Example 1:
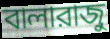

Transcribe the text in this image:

বালারাজু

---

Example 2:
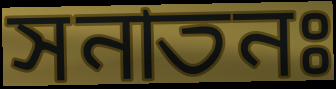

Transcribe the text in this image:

সনাতনঃ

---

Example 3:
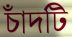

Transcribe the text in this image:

চাঁদটি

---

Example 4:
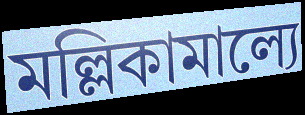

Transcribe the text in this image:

মল্লিকামাল্যে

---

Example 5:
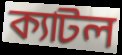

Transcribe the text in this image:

ক্যাটল